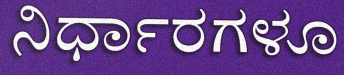
ನಿರ್ಧಾರಗಳೂ